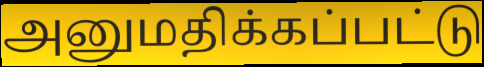
அனுமதிக்கப்பட்டு